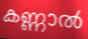
കണ്ണാൽ